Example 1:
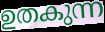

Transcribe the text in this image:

ഉതകുന്ന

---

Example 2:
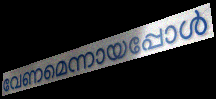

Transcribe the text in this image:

വേണമെന്നായപ്പോൾ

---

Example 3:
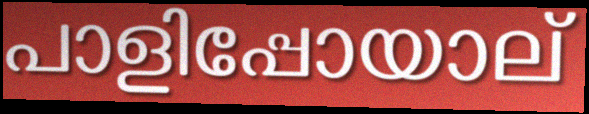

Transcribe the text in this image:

പാളിപ്പോയാല്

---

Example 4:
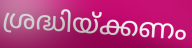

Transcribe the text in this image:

ശ്രദ്ധിയ്ക്കണം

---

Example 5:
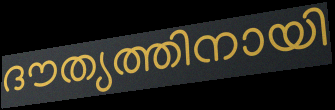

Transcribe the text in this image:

ദൗത്യത്തിനായി